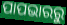
ପାପଭାରରୁ